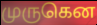
முருகென